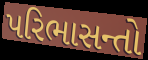
પરિભાસન્તો